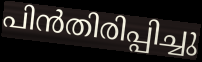
പിൻതിരിപ്പിച്ചു